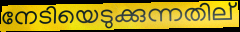
നേടിയെടുക്കുന്നതില്